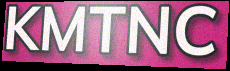
KMTNC